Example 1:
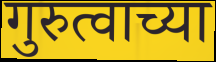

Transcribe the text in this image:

गुरुत्वाच्या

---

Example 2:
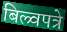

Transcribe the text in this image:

बिल्वपत्रे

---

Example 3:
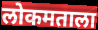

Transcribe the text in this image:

लोकमताला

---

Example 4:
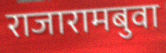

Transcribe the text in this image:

राजारामबुवा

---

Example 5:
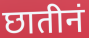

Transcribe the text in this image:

छातीनं